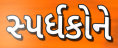
સ્પર્ધકોને